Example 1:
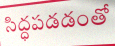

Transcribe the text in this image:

సిద్ధపడడంతో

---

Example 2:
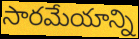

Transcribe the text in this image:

సారమేయాన్ని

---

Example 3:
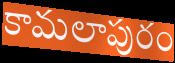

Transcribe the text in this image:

కామలాపురం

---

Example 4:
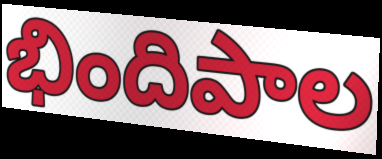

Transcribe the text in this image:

భిందిపాల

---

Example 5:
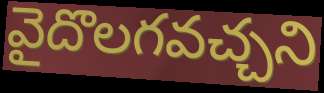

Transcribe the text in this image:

వైదొలగవచ్చని